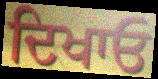
ਦਿਖਾਓ